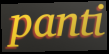
panti